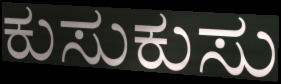
ಕುಸುಕುಸು